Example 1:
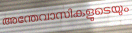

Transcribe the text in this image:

അന്തേവാസികളുടെയും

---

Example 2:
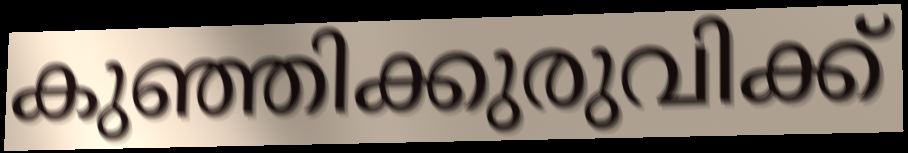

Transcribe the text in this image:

കുഞ്ഞിക്കുരുവിക്ക്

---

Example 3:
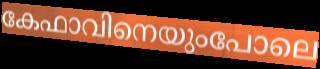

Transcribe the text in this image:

കേഫാവിനെയുംപോലെ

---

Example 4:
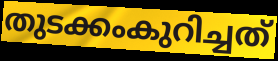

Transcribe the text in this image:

തുടക്കംകുറിച്ചത്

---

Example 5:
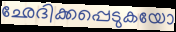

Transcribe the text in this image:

ഛേദിക്കപ്പെടുകയോ